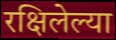
रक्षिलेल्या